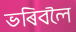
ভৰিবলৈ